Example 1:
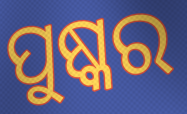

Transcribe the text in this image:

ପୁଷ୍କର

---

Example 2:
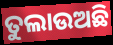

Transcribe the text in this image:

ତୁଲାଉଅଛି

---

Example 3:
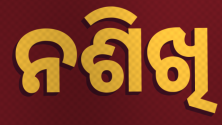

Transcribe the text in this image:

ନଶିଖି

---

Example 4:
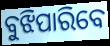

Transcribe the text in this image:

ବୁଝିପାରିବେ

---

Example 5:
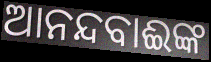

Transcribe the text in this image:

ଆନନ୍ଦବାଈଙ୍କ